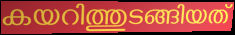
കയറിത്തുടങ്ങിയത്